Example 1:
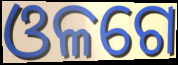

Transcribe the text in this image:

ଓଳଗେ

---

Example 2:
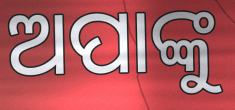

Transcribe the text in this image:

ଅପାଙ୍କୁ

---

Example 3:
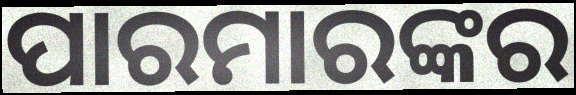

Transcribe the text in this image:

ପାରମାରଙ୍କର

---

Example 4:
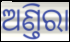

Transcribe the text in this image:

ଅଣ୍ତିରା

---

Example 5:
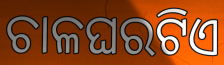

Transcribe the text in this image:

ଚାଳଘରଟିଏ